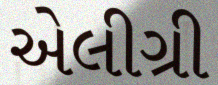
એલીગ્રી